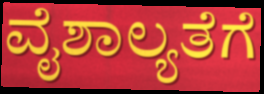
ವೈಶಾಲ್ಯತೆಗೆ